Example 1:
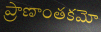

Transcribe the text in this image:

ప్రాణాంతకమో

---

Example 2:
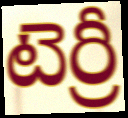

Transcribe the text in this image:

టెర్రీ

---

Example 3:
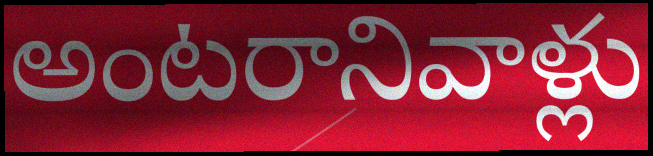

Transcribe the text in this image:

అంటరానివాళ్లు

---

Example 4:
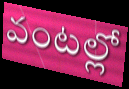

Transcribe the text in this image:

వంటల్లో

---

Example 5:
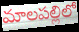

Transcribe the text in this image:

మాలపల్లిలో